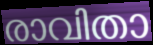
രാവിതാ